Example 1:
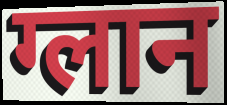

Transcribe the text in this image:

ग्लान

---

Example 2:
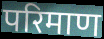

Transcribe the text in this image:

परिमाण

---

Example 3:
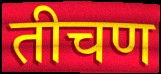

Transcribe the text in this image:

तीचण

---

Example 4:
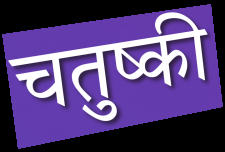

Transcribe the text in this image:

चतुष्की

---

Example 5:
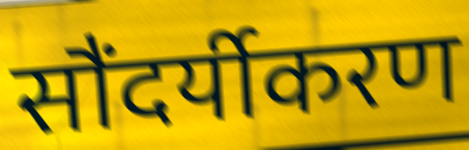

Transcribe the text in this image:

सौंदर्यीकरण